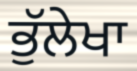
ਭੁੱਲੇਖਾ